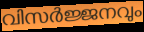
വിസർജ്ജനവും